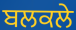
ਬਲਕਲੇ